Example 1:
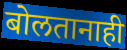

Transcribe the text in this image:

बोलतानाही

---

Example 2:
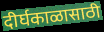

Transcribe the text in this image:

दीर्घकाळासाठी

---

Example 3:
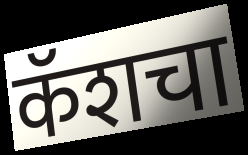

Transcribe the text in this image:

कॅशचा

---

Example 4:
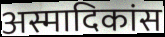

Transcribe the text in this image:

अस्मादिकांस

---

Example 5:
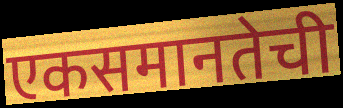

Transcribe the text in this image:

एकसमानतेची